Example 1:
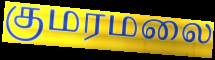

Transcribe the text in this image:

குமரமலை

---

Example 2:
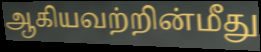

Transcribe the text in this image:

ஆகியவற்றின்மீது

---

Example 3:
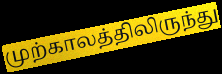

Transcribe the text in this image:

முற்காலத்திலிருந்து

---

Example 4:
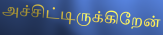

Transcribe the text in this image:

அச்சிட்டிருக்கிறேன்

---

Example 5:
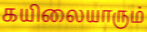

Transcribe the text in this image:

கயிலையாரும்